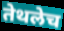
तेथलेच